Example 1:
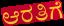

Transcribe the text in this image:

ಆರತಿಗೆ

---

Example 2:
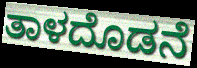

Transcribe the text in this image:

ತಾಳದೊಡನೆ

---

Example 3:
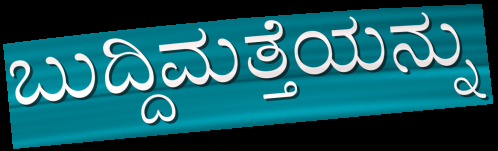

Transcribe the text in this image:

ಬುದ್ದಿಮತ್ತೆಯನ್ನು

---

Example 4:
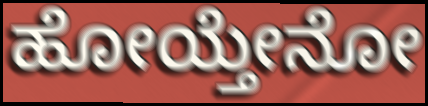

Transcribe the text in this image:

ಹೋಯ್ತೇನೋ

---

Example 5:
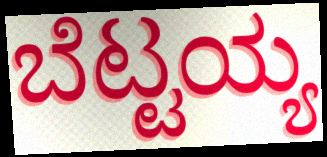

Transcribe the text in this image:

ಬೆಟ್ಟಯ್ಯ